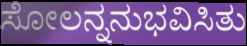
ಸೋಲನ್ನನುಭವಿಸಿತು